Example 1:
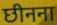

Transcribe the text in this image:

छीनना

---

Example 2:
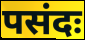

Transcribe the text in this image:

पसंदः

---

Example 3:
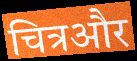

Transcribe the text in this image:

चित्रऔर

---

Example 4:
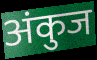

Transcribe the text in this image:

अंकुज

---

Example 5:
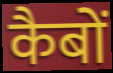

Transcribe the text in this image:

कैबों